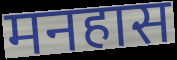
मनहास